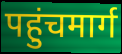
पहुंचमार्ग